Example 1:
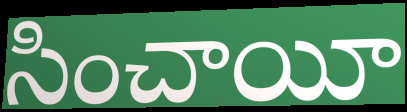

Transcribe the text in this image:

సించాయీ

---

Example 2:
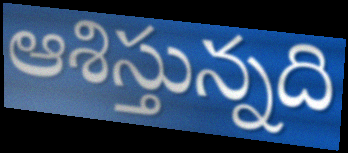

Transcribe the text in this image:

ఆశిస్తున్నది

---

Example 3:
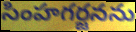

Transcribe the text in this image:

సింహగర్జనను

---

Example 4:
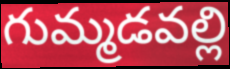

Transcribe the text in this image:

గుమ్మడవల్లి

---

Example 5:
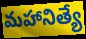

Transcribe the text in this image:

మహానిత్యే